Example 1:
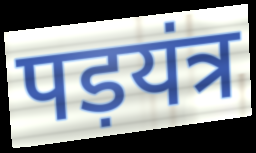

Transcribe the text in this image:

पड़यंत्र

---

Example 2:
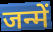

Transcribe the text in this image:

जन्में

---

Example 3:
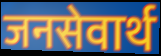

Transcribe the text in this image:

जनसेवार्थ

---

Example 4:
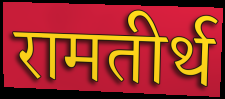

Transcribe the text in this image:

रामतीर्थ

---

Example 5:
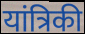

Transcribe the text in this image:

यांत्रिकी